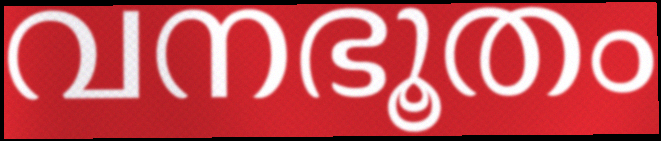
വനഭൂതം